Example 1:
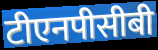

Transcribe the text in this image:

टीएनपीसीबी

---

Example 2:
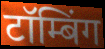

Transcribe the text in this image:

टॉम्बिंग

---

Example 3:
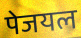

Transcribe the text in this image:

पेजयल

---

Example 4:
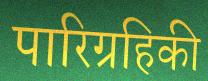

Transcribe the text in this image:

पारिग्रहिकी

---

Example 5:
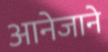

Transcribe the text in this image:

आनेजाने